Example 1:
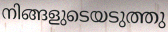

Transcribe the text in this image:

നിങ്ങളുടെയടുത്തു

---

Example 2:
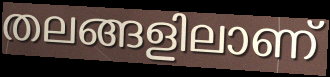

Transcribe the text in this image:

തലങ്ങളിലാണ്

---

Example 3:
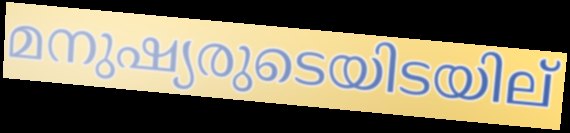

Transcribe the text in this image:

മനുഷ്യരുടെയിടയില്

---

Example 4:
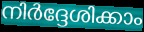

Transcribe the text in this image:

നിർദ്ദേശിക്കാം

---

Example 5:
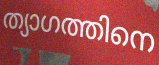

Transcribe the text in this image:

ത്യാഗത്തിനെ